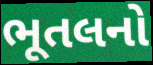
ભૂતલનો